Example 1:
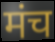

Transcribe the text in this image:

मंच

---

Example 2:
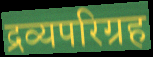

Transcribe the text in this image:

द्रव्यपरिग्रह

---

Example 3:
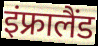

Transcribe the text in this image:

इंफ्रालैंड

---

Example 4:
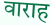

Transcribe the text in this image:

वाराह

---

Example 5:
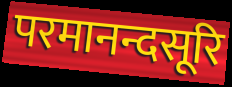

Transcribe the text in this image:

परमानन्दसूरि